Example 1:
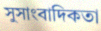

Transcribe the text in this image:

সুসাংবাদিকতা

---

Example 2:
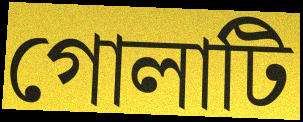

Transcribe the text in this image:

গোলাটি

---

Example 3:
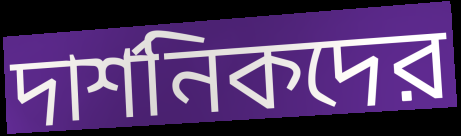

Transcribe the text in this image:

দার্শনিকদের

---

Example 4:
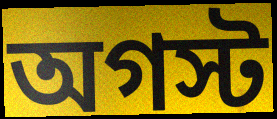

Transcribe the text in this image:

অগস্ট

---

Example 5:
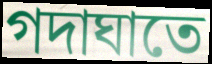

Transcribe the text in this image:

গদাঘাতে